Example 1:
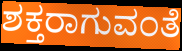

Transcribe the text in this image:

ಶಕ್ತರಾಗುವಂತೆ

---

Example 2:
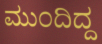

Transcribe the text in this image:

ಮುಂದಿದ್ದ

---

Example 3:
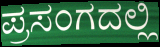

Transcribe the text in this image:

ಪ್ರಸಂಗದಲ್ಲಿ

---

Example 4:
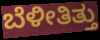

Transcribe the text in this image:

ಬೆಳೀತಿತ್ತು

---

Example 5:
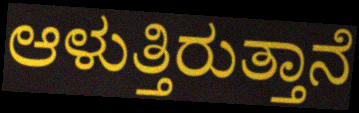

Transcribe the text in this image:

ಆಳುತ್ತಿರುತ್ತಾನೆ